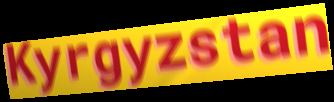
Kyrgyzstan